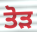
ਤੋਡ਼